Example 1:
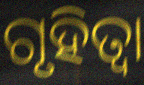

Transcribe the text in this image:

ଗୃହିତ୍ବା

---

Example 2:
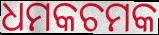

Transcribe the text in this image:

ଧମକଚମକ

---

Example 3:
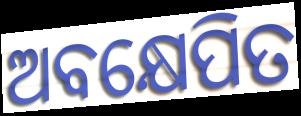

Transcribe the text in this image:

ଅବକ୍ଷେପିତ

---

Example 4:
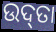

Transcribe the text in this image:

ଉଦ୍‌ତା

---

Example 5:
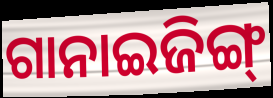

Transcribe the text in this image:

ଗାନାଇଜିଙ୍ଗ୍